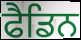
ਫੈਡਿਨ